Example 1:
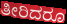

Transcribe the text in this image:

ತೀರಿದರೂ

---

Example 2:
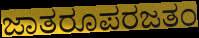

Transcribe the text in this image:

ಜಾತರೂಪರಜತಂ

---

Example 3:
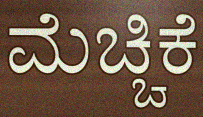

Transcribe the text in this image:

ಮೆಚ್ಚಿಕೆ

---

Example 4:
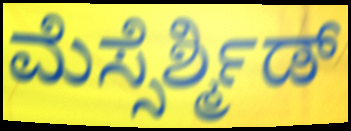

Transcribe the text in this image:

ಮೆಸ್ಸೆರ್ಶ್ಮಿಡ್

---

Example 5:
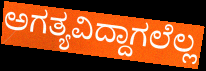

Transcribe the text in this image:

ಅಗತ್ಯವಿದ್ದಾಗಲೆಲ್ಲ